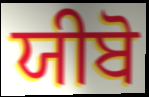
ਯੀਬੋ